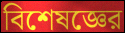
বিশেষজ্ঞের